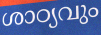
ശാഠ്യവും